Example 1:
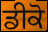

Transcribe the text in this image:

ਡੀਕੋ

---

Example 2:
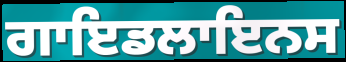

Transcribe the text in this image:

ਗਾਇਡਲਾਇਨਸ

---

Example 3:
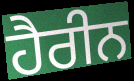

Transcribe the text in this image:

ਹੈਰੀਨ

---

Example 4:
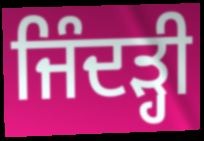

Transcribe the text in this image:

ਜਿੰਦੜ੍ਹੀ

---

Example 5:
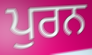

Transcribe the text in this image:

ਪੁਰਨ